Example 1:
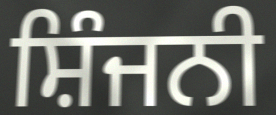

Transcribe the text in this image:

ਸ਼ਿੰਜਨੀ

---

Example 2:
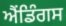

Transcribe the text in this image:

ਐਂਡਿੰਗਸ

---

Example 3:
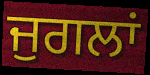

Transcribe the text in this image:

ਜੁਗਲਾਂ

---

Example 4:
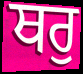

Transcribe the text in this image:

ਥਰੁ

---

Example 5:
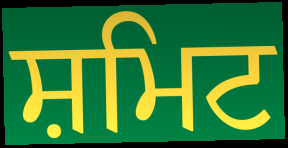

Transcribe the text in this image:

ਸ਼ਮਿਟ